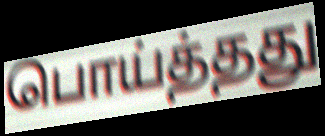
பொய்த்தது